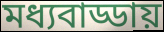
মধ্যবাড্ডায়